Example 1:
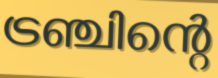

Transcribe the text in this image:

ട്രഞ്ചിന്റെ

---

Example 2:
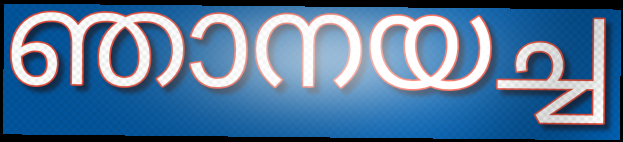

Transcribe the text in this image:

ഞാനയച്ച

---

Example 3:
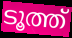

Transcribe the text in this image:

ടൂത്ത്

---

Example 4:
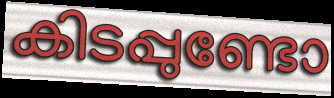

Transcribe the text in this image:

കിടപ്പുണ്ടോ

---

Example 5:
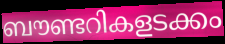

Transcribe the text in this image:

ബൗണ്ടറികളടക്കം